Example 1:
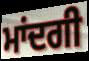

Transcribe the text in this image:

ਮਾਂਦਗੀ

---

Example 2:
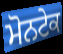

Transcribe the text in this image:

ਮੋਨਟੇਕ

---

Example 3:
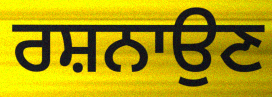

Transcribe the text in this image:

ਰਸ਼ਨਾਉਣ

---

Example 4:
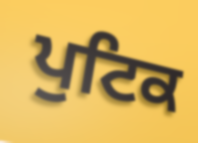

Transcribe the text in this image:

ਪੁਟਿਕ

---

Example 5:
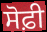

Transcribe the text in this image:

ਸੋਫ਼ੀ